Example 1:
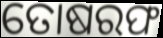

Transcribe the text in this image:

ତୋଷରଫ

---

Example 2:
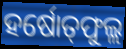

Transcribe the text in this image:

ହର୍ଷୋତ୍‌ଫୁଲ୍ଲ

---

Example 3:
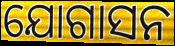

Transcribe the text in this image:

ଯୋଗାସନ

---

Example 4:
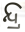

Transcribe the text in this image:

ନ୍ଦ୍ର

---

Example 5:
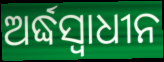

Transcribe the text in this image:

ଅର୍ଦ୍ଧସ୍ୱାଧୀନ